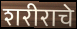
शरीराचे